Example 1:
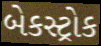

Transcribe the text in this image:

બેકસ્ટ્રોક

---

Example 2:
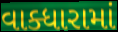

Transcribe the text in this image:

વાક્ધારામાં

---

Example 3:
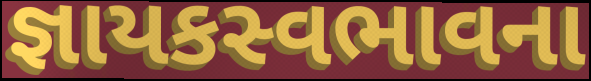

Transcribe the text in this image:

જ્ઞાયકસ્વભાવના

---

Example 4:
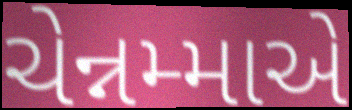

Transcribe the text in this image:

ચેન્નમ્માએ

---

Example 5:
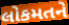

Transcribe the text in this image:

લોકમતને